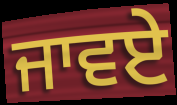
ਜਾਵਏ